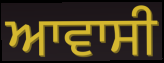
ਆਵਾਸੀ